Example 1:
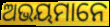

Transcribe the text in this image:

ଅଭୟମାନେ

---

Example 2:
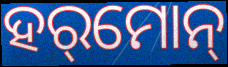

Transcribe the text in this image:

ହର୍‌ମୋନ୍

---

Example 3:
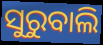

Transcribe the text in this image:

ସୁରୁବାଲି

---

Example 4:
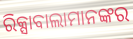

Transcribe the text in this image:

ରିକ୍ସାବାଲାମାନଙ୍କର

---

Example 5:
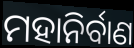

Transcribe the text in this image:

ମହାନିର୍ବାଣ